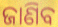
ଜାଣିବ